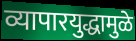
व्यापारयुद्धामुळे